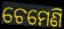
ଚେମେଣି